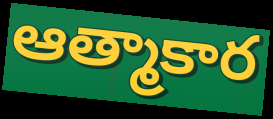
ఆత్మాకార